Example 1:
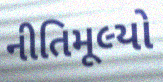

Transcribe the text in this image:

નીતિમૂલ્યો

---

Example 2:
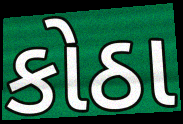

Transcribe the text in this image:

કોઠા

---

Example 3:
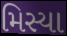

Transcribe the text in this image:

મિસ્યા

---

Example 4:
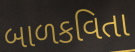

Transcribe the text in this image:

બાળકવિતા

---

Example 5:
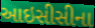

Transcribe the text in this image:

આઇસીસીના